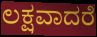
ಲಕ್ಷವಾದರೆ